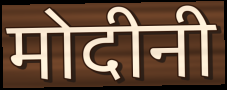
मोदीनी